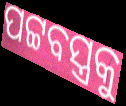
ପଟ୍ଟବସ୍ତ୍ରକୁ